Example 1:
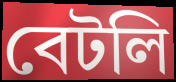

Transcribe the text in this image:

বেটলি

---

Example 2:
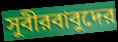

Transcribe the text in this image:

সুবীরবাবুদের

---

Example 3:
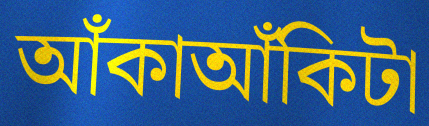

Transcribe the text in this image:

আঁকাআঁকিটা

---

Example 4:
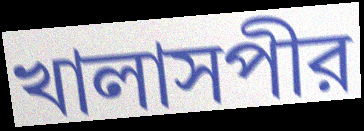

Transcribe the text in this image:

খালাসপীর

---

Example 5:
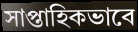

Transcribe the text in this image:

সাপ্তাহিকভাবে